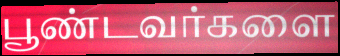
பூண்டவர்களை